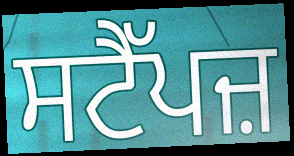
ਸਟੈੱਪਜ਼